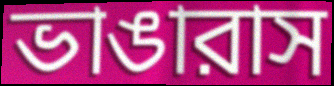
ভাঙারাস